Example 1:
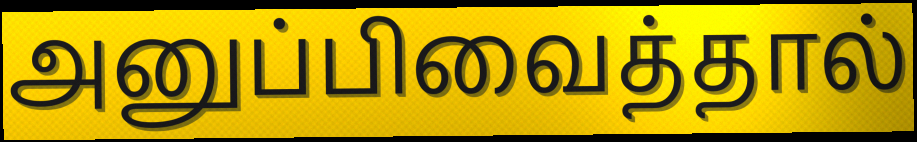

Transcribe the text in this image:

அனுப்பிவைத்தால்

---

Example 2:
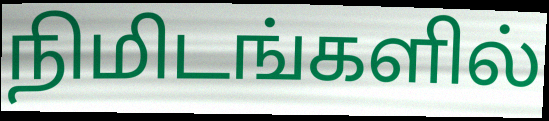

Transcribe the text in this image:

நிமிடங்களில்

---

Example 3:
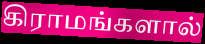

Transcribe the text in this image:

கிராமங்களால்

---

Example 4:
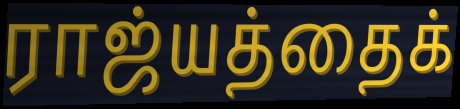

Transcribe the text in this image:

ராஜ்யத்தைக்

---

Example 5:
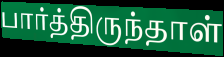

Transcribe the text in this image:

பார்த்திருந்தாள்